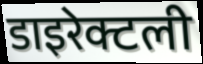
डाइरेक्टली